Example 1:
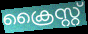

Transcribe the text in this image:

ക്രൈസ്റ്റ്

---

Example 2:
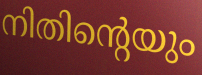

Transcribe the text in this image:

നിതിന്റെയും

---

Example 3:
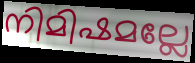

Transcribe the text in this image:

നിമിഷമല്ലേ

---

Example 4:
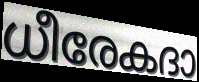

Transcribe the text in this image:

ധീരേകദാ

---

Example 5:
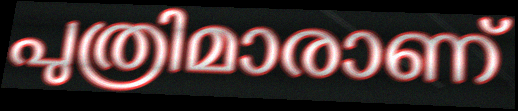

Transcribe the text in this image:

പുത്രിമാരാണ്